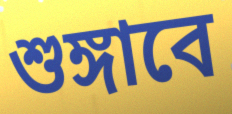
শুঙ্গাবে